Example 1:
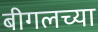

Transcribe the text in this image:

बीगलच्या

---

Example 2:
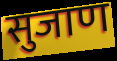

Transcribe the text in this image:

सुजाण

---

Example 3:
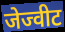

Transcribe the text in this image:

जेज्वीट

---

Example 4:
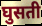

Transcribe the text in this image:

घुसती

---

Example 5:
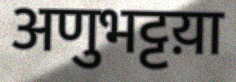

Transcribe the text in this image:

अणुभट्टय़ा